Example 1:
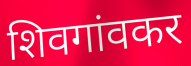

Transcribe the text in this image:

शिवगांवकर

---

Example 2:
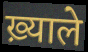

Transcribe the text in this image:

ख़्याले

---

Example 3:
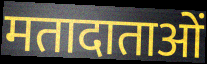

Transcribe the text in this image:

मतादाताओं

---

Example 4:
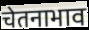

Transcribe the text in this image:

चेतनाभाव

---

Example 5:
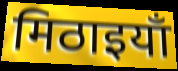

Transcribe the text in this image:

मिठाइयाँ